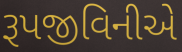
રૂપજીવિનીએ